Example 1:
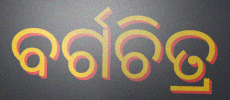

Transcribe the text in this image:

ବର୍ଗଚିତ୍ର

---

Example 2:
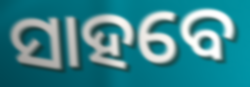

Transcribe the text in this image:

ସାହବେ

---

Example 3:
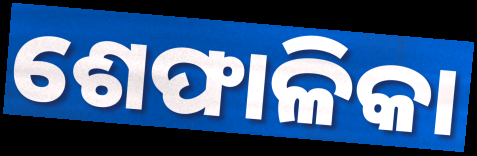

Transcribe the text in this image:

ଶେଫାଳିକା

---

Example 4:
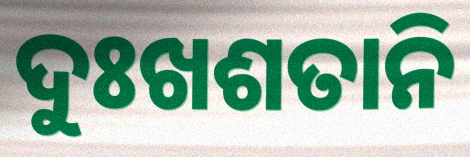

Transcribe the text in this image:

ଦୁଃଖଶତାନି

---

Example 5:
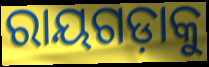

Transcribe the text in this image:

ରାୟଗଡ଼ାକୁ